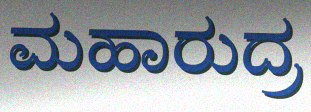
ಮಹಾರುದ್ರ